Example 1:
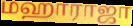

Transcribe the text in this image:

மஹாராஜா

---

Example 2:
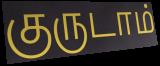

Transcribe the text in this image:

குருடாம்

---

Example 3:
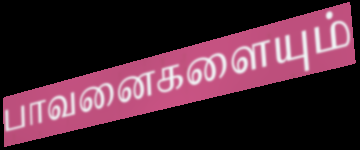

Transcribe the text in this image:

பாவனைகளையும்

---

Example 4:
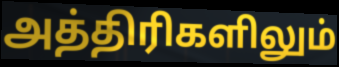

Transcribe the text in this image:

அத்திரிகளிலும்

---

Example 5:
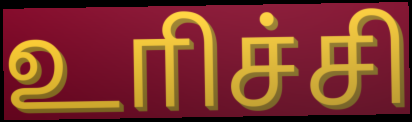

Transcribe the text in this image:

உரிச்சி